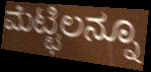
ಮೆಟ್ಟಿಲನ್ನೂ